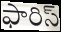
ఫారిస్